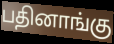
பதினாங்கு